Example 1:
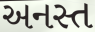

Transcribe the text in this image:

અનસ્ત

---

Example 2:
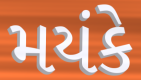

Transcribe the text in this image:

મયંકે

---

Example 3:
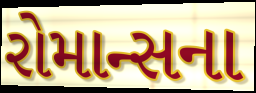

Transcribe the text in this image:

રોમાન્સના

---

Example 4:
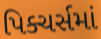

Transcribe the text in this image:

પિક્ચર્સમાં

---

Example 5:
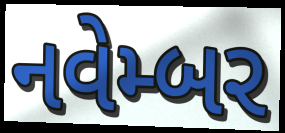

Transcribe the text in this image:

નવેમ્બર